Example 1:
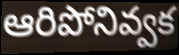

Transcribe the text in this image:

ఆరిపోనివ్వక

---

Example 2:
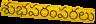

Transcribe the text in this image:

శుభపరంపరలు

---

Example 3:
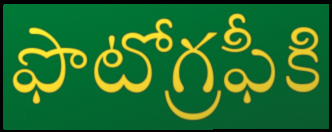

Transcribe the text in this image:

ఫొటోగ్రఫీకి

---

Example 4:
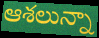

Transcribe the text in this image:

ఆశలున్నా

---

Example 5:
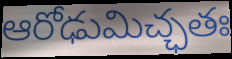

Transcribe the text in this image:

ఆరోఢుమిచ్ఛతః